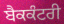
ਬੈਕਕੰਟਰੀ